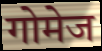
गोमेज